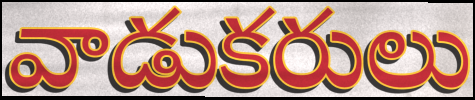
వాడుకరులు